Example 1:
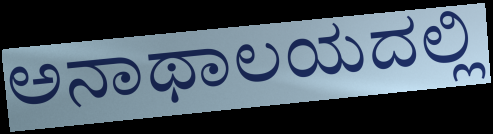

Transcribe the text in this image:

ಅನಾಥಾಲಯದಲ್ಲಿ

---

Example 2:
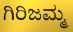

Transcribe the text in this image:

ಗಿರಿಜಮ್ಮ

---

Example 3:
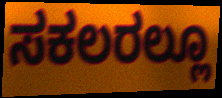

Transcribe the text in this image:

ಸಕಲರಲ್ಲೂ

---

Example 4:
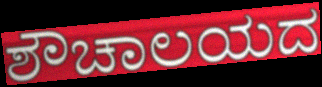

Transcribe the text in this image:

ಶೌಚಾಲಯದ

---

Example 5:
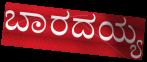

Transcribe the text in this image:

ಬಾರದಯ್ಯ